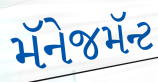
મૅનેજમૅન્ટ